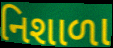
નિશાળા